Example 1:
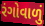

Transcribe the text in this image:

રંગોવાળું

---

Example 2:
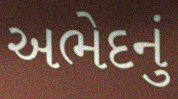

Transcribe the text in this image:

અભેદનું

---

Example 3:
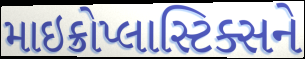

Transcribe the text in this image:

માઇક્રોપ્લાસ્ટિક્સને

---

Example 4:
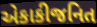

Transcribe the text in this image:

એકાકીજનિત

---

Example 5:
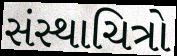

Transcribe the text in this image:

સંસ્થાચિત્રો